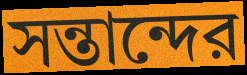
সন্তান্দের